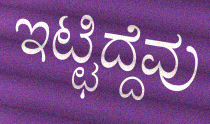
ಇಟ್ಟಿದ್ದೆವು